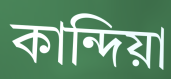
কান্দিয়া